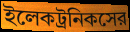
ইলেকট্রনিকসের